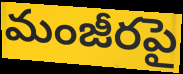
మంజీరపై